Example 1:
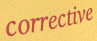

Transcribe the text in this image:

corrective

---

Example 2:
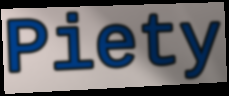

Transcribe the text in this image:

Piety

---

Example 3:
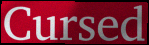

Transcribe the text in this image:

Cursed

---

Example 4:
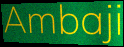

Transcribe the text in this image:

Ambaji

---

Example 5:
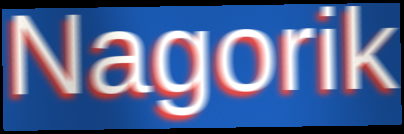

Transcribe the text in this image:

Nagorik